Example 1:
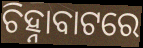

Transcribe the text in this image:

ଚିହ୍ନାବାଟରେ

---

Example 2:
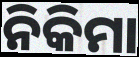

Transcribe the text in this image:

ନିକିମା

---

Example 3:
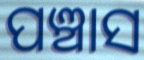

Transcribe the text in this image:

ପଞ୍ଚାସ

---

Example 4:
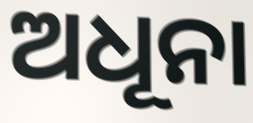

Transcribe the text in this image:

ଅଧୂନା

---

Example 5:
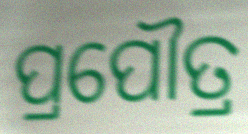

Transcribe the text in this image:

ପ୍ରପୌତ୍ର